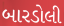
બારડોલી